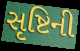
સૃષ્ટિની